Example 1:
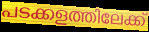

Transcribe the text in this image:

പടക്കളത്തിലേക്ക്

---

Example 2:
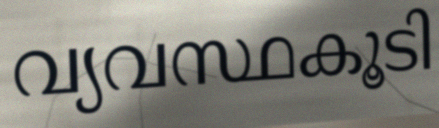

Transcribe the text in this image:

വ്യവസ്ഥകൂടി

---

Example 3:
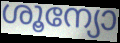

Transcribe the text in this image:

ശൂന്യോ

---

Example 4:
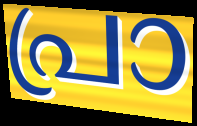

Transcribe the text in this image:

പ്രാ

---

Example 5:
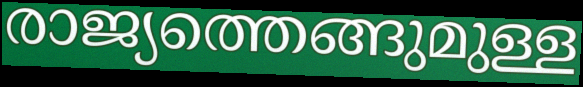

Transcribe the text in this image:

രാജ്യത്തെങ്ങുമുള്ള